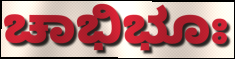
ಚಾಭಿಭೂಃ